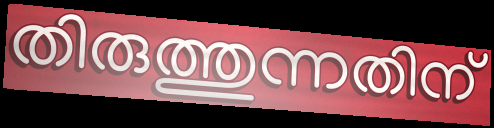
തിരുത്തുന്നതിന്